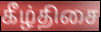
கீழ்திசை